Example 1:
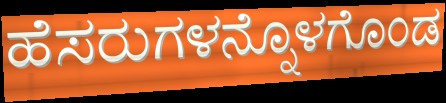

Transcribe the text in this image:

ಹೆಸರುಗಳನ್ನೊಳಗೊಂಡ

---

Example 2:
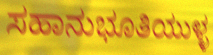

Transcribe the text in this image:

ಸಹಾನುಭೂತಿಯುಳ್ಳ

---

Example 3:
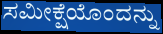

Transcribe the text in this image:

ಸಮೀಕ್ಷೆಯೊಂದನ್ನು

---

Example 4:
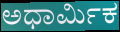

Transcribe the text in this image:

ಅಧಾರ್ಮಿಕ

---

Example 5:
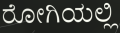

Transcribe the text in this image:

ರೋಗಿಯಲ್ಲಿ